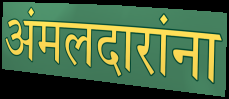
अंमलदारांना